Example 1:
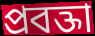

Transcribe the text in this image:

প্রবক্তা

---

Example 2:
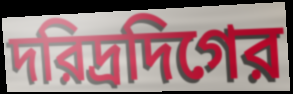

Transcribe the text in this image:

দরিদ্রদিগের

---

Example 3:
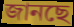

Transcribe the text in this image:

জানছে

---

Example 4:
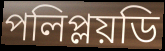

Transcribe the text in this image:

পলিপ্লয়ডি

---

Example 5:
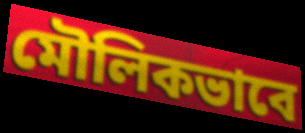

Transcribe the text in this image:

মৌলিকভাবে